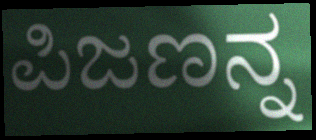
ಪಿಜಣನ್ನ